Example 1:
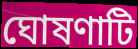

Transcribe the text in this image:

ঘোষণাটি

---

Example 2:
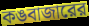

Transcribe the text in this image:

কঙবাজারের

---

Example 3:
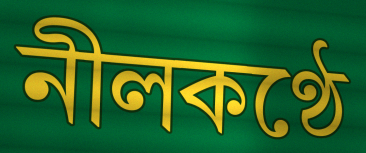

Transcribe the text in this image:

নীলকণ্ঠে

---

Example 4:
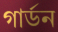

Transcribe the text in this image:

গার্ডন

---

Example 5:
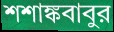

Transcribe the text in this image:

শশাঙ্কবাবুর